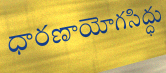
ధారణాయోగసిద్ధు